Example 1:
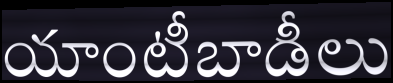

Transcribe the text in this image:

యాంటీబాడీలు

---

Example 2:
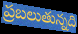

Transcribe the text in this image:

ప్రబలుతున్నది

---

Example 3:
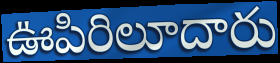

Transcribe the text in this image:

ఊపిరిలూదారు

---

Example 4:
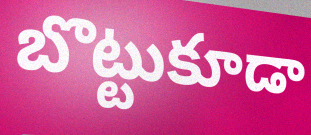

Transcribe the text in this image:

బొట్టుకూడా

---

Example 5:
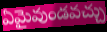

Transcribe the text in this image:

ఏమైవుండవచ్చు